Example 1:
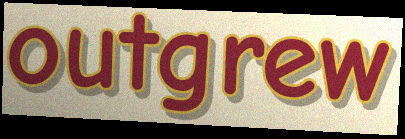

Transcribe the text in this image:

outgrew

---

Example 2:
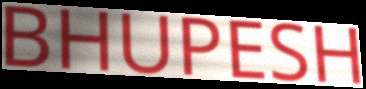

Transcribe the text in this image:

BHUPESH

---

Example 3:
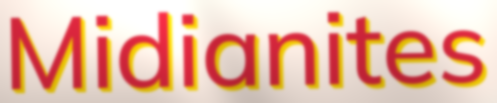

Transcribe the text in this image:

Midianites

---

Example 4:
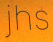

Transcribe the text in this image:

jhs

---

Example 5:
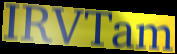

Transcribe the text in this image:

IRVTam